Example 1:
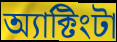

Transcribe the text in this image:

অ্যাক্টিংটা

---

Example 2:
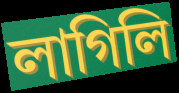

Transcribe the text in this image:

লাগিলি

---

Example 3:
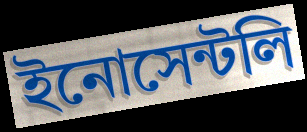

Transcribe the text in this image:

ইনোসেন্টলি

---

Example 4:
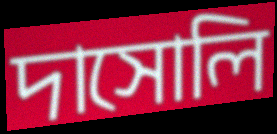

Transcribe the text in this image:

দাসোলি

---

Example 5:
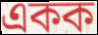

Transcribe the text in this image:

একক